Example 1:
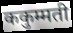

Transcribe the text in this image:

ककुम्मती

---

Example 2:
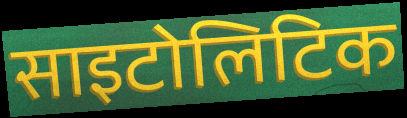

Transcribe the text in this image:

साइटोलिटिक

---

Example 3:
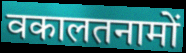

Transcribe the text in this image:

वकालतनामों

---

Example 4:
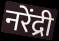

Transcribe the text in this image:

नरेंद्री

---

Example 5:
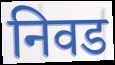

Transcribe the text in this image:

निवड